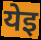
येइ